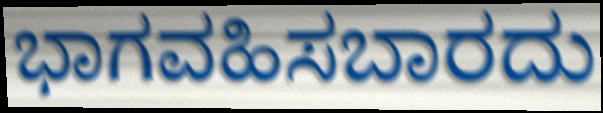
ಭಾಗವಹಿಸಬಾರದು